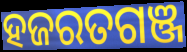
ହଜରତଗଞ୍ଜ